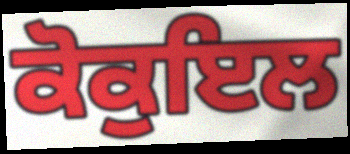
ਕੋਕੁਇਲ